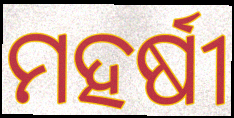
ମହର୍ଷୀ